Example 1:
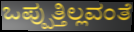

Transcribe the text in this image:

ಒಪ್ಪುತ್ತಿಲ್ಲವಂತೆ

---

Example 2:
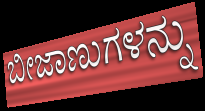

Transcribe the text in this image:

ಬೀಜಾಣುಗಳನ್ನು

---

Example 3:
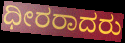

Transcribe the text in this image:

ಧೀರರಾದರು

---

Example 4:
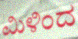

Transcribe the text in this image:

ಮಿಳಿಂದ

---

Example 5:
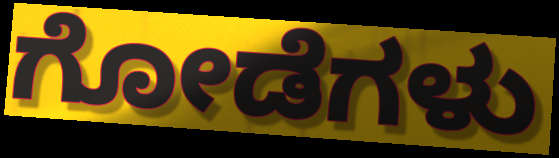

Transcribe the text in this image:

ಗೋಡೆಗಳು